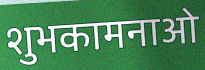
शुभकामनाओ